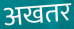
अखतर